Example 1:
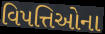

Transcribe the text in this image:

વિપત્તિઓના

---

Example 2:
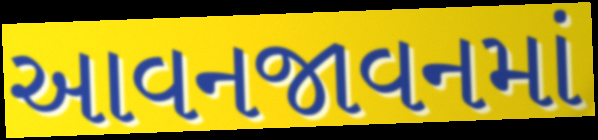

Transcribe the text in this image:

આવનજાવનમાં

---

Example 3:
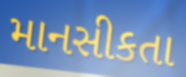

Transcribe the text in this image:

માનસીકતા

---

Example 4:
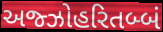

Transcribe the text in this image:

અજ્ઝોહરિતબ્બં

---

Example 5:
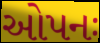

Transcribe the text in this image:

ઓપનઃ